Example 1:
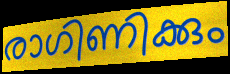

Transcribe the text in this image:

രാഗിണിക്കും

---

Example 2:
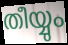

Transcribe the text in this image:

തീയ്യും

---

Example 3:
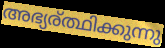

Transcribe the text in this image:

അഭ്യര്ത്ഥിക്കുന്നു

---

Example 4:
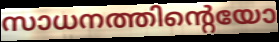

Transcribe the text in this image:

സാധനത്തിന്റെയോ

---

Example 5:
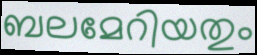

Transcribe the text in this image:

ബലമേറിയതും